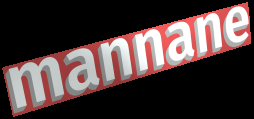
mannane